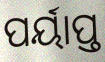
ପର୍ୟାପ୍ତ